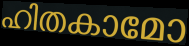
ഹിതകാമോ